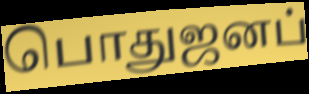
பொதுஜனப்